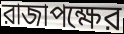
রাজাপক্ষের